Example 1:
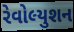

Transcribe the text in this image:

રેવોલ્યુશન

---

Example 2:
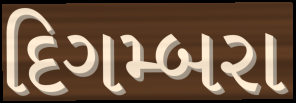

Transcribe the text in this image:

દિગમ્બરા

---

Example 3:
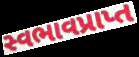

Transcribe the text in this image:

સ્વભાવપ્રાપ્ત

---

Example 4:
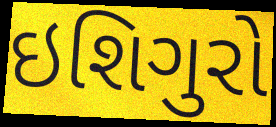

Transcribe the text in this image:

ઇશિગુરો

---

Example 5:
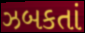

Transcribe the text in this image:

ઝબકતાં